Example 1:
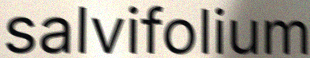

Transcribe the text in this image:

salvifolium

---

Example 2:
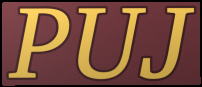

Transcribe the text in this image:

PUJ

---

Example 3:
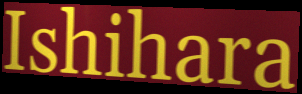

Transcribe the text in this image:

Ishihara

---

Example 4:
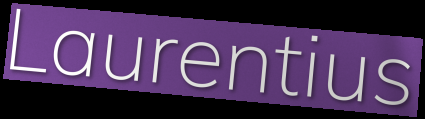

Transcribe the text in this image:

Laurentius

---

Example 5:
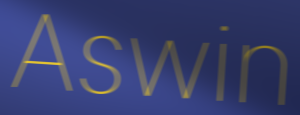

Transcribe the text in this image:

Aswin